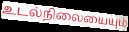
உடல்நிலையையும்